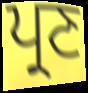
ਪ੍ਰਣ